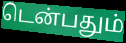
டென்பதும்